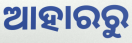
ଆହାରରୁ